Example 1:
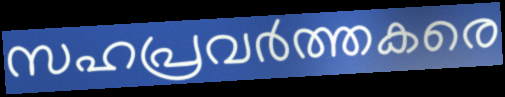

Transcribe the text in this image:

സഹപ്രവർത്തകരെ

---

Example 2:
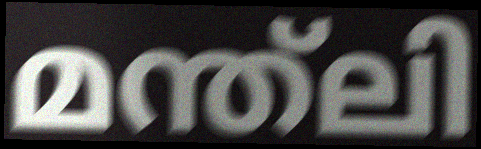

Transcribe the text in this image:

മന്ത്ലി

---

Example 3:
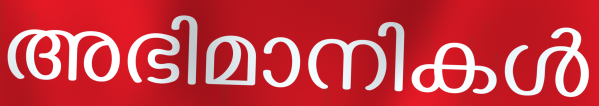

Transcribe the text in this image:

അഭിമാനികൾ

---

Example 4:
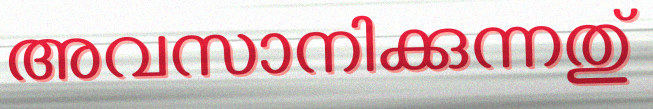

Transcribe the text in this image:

അവസാനിക്കുന്നതു്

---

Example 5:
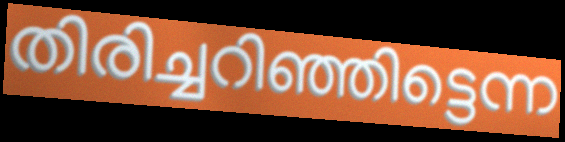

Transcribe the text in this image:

തിരിച്ചറിഞ്ഞിട്ടെന്ന